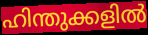
ഹിന്തുക്കളിൽ